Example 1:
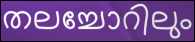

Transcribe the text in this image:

തലച്ചോറിലും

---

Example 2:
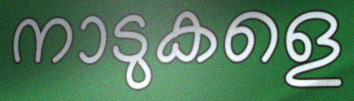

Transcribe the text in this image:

നാടുകളെ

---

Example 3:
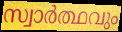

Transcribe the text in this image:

സ്വാർത്ഥവും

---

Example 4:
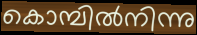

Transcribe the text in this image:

കൊമ്പിൽനിന്നു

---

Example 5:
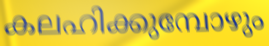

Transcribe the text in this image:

കലഹിക്കുമ്പോഴും